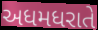
અધમધરાતે